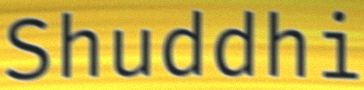
Shuddhi